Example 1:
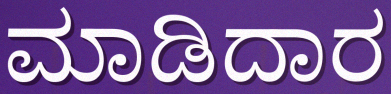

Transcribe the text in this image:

ಮಾಡಿದಾರ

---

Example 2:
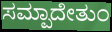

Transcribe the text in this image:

ಸಮ್ಪಾದೇತುಂ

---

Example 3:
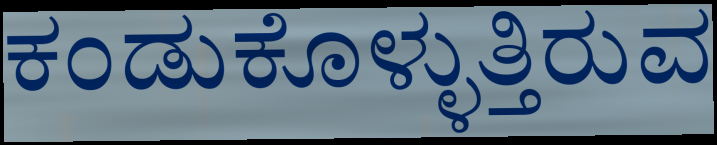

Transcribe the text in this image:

ಕಂಡುಕೊಳ್ಳುತ್ತಿರುವ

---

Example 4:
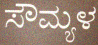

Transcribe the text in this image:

ಸೌಮ್ಯಳ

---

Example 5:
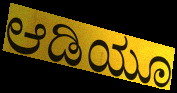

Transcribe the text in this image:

ಆಡಿಯೂ